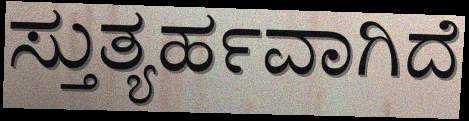
ಸ್ತುತ್ಯರ್ಹವಾಗಿದೆ